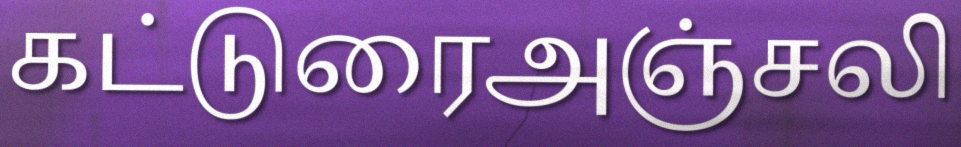
கட்டுரைஅஞ்சலி